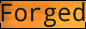
Forged